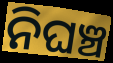
ନିଘଞ୍ଚ